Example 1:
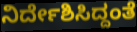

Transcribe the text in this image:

ನಿರ್ದೇಶಿಸಿದ್ದಂತೆ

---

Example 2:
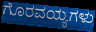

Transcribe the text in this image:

ಗೊರವಯ್ಯಗಳು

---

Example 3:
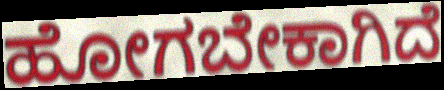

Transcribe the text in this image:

ಹೋಗಬೇಕಾಗಿದೆ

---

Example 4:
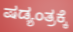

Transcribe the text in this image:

ಷಡ್ಯಂತ್ರಕ್ಕೆ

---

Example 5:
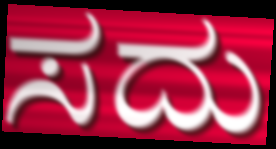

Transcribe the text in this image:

ಸದು